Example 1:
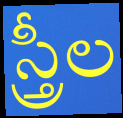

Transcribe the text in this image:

స్త్రీల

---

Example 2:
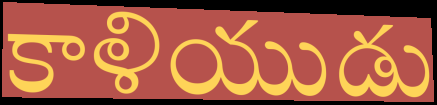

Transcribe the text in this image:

కాళియుడు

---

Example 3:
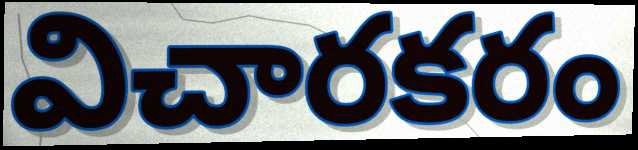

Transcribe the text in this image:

విచారకరం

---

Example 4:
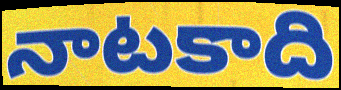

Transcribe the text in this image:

నాటకాది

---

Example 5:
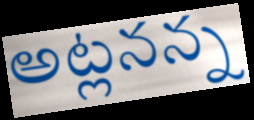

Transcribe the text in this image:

అట్లనన్న